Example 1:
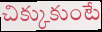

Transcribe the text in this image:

చిక్కుకుంటే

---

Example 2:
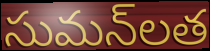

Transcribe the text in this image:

సుమన్‌లత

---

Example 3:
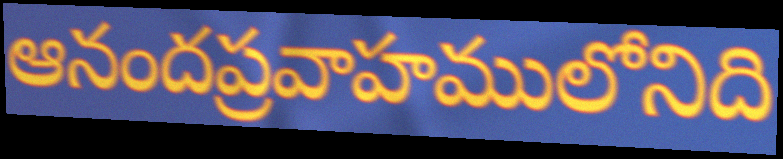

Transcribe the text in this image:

ఆనందప్రవాహములోనిది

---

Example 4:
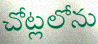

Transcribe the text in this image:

చోట్లలోను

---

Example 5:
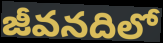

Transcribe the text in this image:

జీవనదిలో